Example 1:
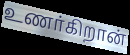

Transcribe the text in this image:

உணர்கிறான்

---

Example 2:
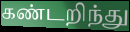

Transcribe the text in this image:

கண்டறிந்து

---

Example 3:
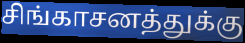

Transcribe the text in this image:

சிங்காசனத்துக்கு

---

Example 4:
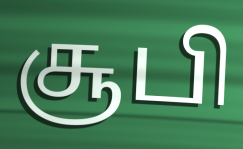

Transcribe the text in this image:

சூபி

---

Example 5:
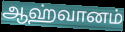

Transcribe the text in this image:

ஆஹ்வானம்